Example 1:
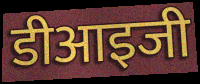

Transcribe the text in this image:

डीआइजी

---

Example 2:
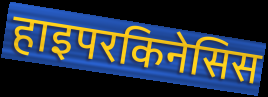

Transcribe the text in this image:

हाइपरकिनेसिस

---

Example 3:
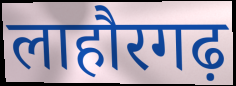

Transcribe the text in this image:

लाहौरगढ़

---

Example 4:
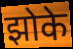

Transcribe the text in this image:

झोके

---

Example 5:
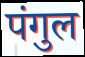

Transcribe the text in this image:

पंगुल